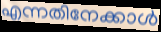
എന്നതിനേക്കാൾ